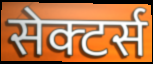
सेक्‍टर्स